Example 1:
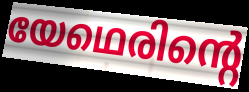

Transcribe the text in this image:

യേഥെരിന്റെ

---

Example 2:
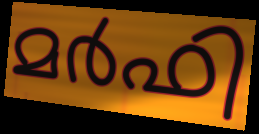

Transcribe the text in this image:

മർഫി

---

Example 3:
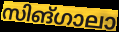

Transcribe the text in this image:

സിങ്ഗാലാ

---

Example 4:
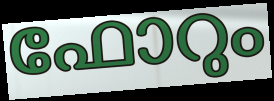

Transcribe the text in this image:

ഫോറും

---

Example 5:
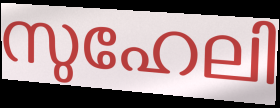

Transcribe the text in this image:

സുഹേലി